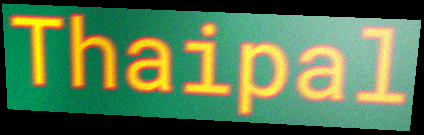
Thaipal